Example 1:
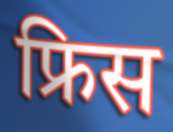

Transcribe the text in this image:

फ्रिस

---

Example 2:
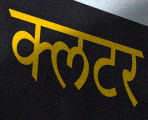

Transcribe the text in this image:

क्लटर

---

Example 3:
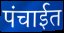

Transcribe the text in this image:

पंचाईत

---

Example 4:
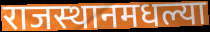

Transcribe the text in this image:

राजस्थानमधल्या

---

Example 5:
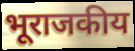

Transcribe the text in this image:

भूराजकीय